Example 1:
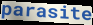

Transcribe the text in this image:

parasite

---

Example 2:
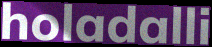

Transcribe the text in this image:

holadalli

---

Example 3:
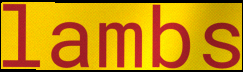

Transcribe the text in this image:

lambs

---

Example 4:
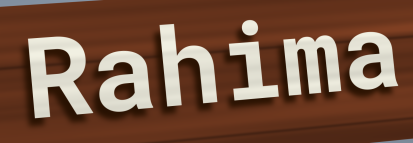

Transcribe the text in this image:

Rahima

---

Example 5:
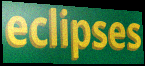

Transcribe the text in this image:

eclipses